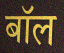
बॉल